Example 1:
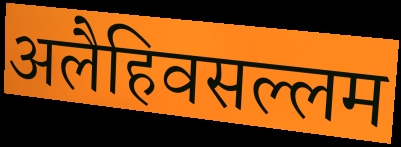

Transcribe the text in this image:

अलैहिवसल्लम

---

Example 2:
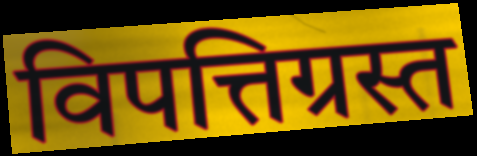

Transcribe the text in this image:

विपत्तिग्रस्त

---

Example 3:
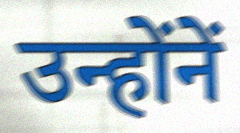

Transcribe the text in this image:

उन्‍होंनें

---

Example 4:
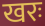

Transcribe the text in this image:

खरः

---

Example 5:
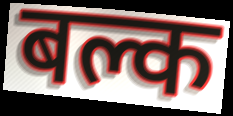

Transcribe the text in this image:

बल्क